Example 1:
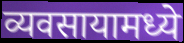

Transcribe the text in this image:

व्यवसायामध्ये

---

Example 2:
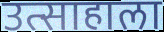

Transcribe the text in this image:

उत्साहाला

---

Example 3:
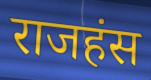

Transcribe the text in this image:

राजहंस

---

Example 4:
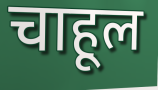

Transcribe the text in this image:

चाहूल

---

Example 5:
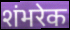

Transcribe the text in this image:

शंभरेक